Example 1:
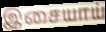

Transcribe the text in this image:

இசையாய்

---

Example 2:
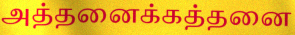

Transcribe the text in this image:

அத்தனைக்கத்தனை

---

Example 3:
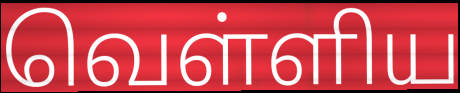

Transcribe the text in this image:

வெள்ளிய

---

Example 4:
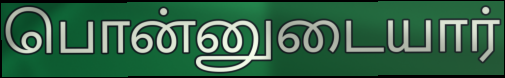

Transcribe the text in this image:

பொன்னுடையார்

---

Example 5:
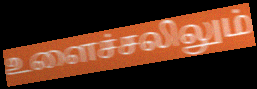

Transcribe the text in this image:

உளைச்சலிலும்